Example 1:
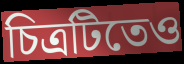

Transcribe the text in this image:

চিত্রটিতেও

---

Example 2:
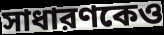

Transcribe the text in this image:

সাধারণকেও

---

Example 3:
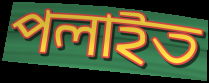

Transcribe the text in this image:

পলাইত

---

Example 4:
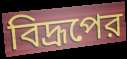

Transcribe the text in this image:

বিদ্রূপের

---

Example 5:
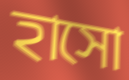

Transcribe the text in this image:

হাসো